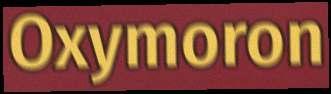
Oxymoron